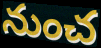
నుంచ